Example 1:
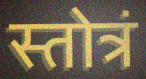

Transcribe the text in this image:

स्तोत्रं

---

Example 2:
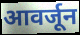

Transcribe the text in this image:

आवर्जून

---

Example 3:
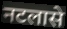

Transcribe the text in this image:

नटलासे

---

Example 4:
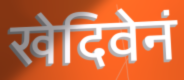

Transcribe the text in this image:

खेदिवेनं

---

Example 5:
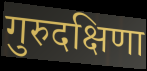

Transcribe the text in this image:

गुरुदक्षिणा